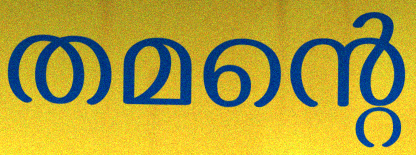
തമന്റെ